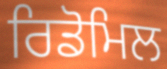
ਰਿਡੋਮਿਲ